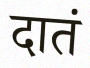
दातं